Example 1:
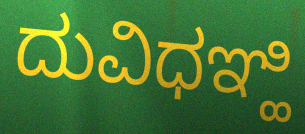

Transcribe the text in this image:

ದುವಿಧಞ್ಹಿ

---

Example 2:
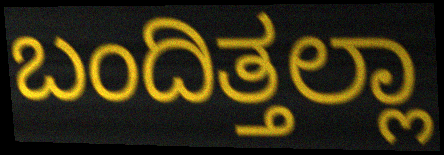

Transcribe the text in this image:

ಬಂದಿತ್ತಲ್ಲಾ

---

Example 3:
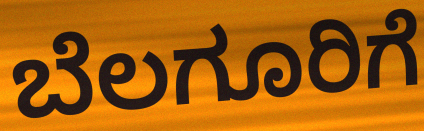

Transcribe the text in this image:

ಬೆಲಗೂರಿಗೆ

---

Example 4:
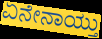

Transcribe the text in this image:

ಏನೇನಾಯ್ತು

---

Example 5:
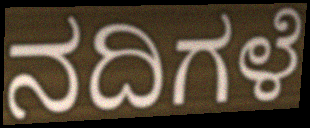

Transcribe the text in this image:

ನದಿಗಳೆ